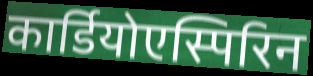
कार्डियोएस्पिरिन